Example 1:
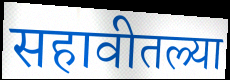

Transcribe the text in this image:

सहावीतल्या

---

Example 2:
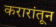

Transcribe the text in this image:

करारांतून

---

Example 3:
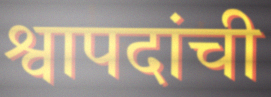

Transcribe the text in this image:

श्वापदांची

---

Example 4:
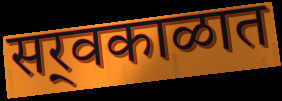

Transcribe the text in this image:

सर्वकाळात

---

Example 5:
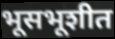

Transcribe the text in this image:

भूसभूशीत